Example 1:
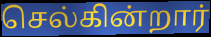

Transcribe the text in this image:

செல்கின்றார்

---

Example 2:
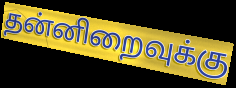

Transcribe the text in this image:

தன்னிறைவுக்கு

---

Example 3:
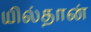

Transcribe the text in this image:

யில்தான்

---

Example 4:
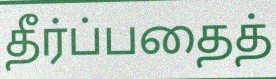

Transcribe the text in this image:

தீர்ப்பதைத்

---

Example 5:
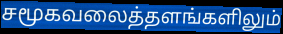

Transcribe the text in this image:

சமூகவலைத்தளங்களிலும்